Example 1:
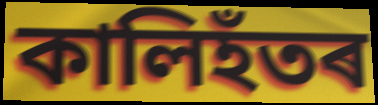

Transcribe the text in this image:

কালিহঁতৰ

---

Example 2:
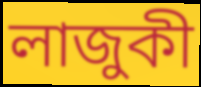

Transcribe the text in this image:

লাজুকী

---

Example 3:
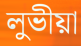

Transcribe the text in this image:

লুভীয়া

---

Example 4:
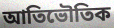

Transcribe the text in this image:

আতিভৌতিক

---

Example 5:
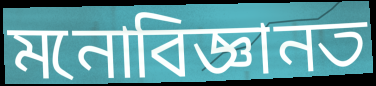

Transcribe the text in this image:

মনোবিজ্ঞানত